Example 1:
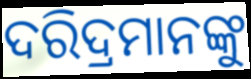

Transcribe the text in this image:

ଦରିଦ୍ରମାନଙ୍କୁ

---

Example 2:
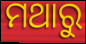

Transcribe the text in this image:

ମଥାରୁ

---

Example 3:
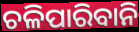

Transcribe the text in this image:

ଚଳିପାରିବାନି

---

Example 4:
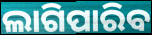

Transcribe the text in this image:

ଲାଗିପାରିବ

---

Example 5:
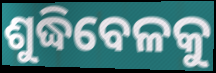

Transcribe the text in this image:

ଶୁଦ୍ଧିବେଳକୁ